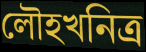
লৌহখনিত্র